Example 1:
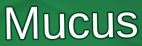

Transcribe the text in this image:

Mucus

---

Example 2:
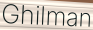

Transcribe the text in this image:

Ghilman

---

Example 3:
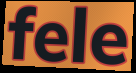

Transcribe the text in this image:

fele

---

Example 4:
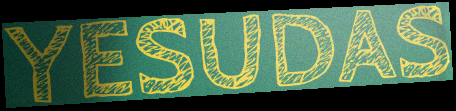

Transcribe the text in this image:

YESUDAS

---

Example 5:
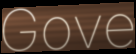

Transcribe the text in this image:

Gove